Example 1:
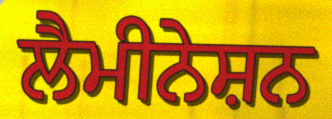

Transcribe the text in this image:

ਲੈਮੀਨੇਸ਼ਨ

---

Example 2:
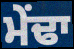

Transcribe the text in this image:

ਮੇਂਢਾ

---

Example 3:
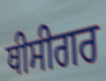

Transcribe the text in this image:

ਥੀਸੀਗਰ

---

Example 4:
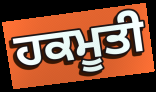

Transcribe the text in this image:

ਹਕਮੂਤੀ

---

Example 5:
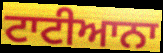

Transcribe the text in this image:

ਟਾਟੀਆਨਾ